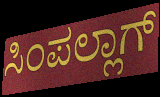
ಸಿಂಪಲ್ಲಾಗ್